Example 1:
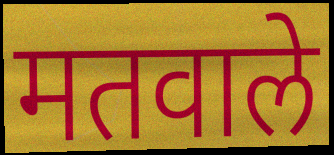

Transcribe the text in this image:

मतवाले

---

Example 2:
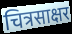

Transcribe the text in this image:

चित्रसाक्षर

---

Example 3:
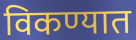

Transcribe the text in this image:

विकण्यात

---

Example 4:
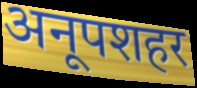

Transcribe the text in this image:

अनूपशहर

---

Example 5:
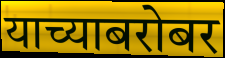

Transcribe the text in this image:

याच्याबरोबर